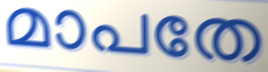
മാപതേ